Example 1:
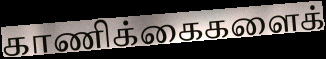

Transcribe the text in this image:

காணிக்கைகளைக்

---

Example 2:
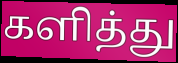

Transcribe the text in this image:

களித்து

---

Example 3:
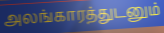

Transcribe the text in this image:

அலங்காரத்துடனும்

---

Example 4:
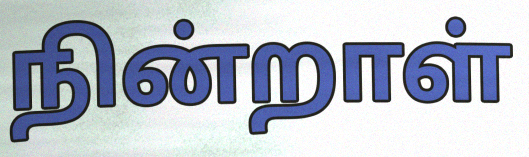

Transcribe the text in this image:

நின்றாள்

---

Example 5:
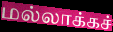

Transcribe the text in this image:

மல்லாக்கச்